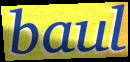
baul